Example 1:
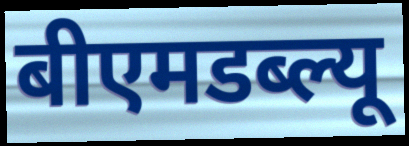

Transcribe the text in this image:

बीएमडब्ल्यू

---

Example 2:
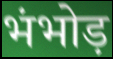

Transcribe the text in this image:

भंभोड़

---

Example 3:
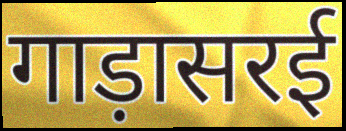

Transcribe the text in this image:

गाड़ासरई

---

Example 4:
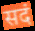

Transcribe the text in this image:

सदं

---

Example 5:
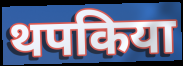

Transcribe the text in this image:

थपकिया